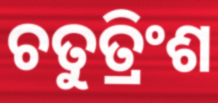
ଚତୁତ୍ରିଂଶ